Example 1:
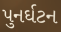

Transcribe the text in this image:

પુનર્ઘટન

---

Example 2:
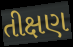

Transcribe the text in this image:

તીક્ષણ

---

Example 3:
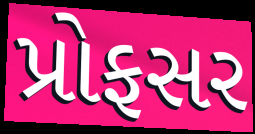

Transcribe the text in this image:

પ્રોફસર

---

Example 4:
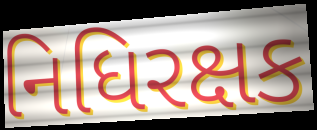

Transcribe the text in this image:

નિધિરક્ષક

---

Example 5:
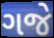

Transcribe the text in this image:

ગજે